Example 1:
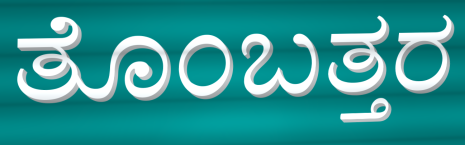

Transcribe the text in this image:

ತೊಂಬತ್ತರ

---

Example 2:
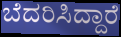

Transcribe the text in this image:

ಬೆದರಿಸಿದ್ದಾರೆ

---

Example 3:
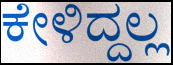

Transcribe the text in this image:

ಕೇಳಿದ್ದಲ್ಲ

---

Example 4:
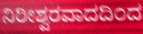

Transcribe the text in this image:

ನಿರೀಶ್ವರವಾದದಿಂದ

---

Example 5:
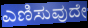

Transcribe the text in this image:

ಎಣಿಸುವುದೇ